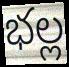
భల్ల